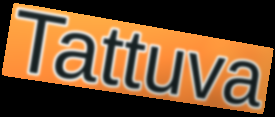
Tattuva